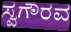
ಸ್ವಗೌರವ